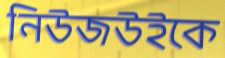
নিউজউইকে